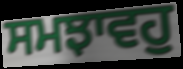
ਸਮਝਾਵਹੁ